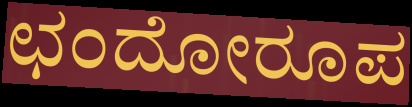
ಛಂದೋರೂಪ